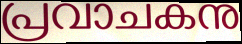
പ്രവാചകനു